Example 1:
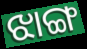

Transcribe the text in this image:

ଝାଙ୍ଗ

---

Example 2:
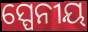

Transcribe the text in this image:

ସ୍ପେନୀୟ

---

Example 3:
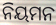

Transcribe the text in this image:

ନିୟମନ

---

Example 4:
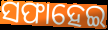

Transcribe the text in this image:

ସଫାହେଇ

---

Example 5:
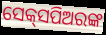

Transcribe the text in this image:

ସେକ୍‌ସପିଅରଙ୍କ